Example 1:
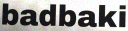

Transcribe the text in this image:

badbaki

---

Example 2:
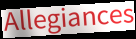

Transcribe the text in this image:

Allegiances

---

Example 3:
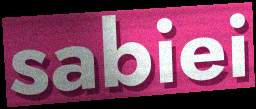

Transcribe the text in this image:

sabiei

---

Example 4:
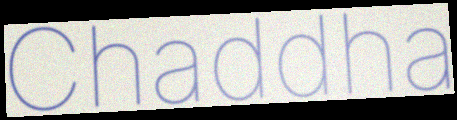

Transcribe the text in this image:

Chaddha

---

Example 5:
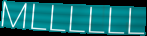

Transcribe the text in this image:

MLLLLLL